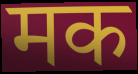
मक